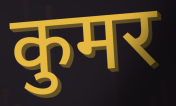
कुमर